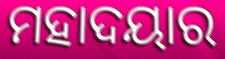
ମହାଦୟାର